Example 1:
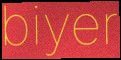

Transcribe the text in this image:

biyer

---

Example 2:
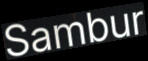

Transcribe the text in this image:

Sambur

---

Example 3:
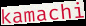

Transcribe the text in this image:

kamachi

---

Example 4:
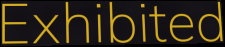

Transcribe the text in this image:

Exhibited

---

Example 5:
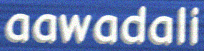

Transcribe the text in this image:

aawadali